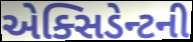
એક્સિડેન્ટની